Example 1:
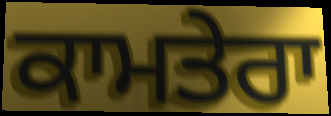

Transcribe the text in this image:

ਕਾਮਤੇਰਾ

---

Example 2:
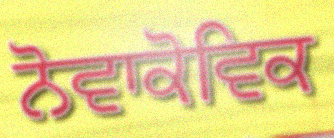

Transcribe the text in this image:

ਨੋਵਾਕੋਵਿਕ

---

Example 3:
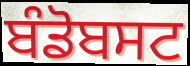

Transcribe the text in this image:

ਬੰਡੋਬਸਟ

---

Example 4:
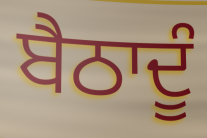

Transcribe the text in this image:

ਬੈਠਾਦੂੰ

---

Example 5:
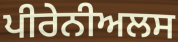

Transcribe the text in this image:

ਪੀਰੇਨੀਅਲਸ